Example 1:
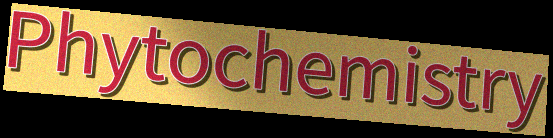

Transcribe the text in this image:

Phytochemistry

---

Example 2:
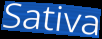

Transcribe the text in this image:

Sativa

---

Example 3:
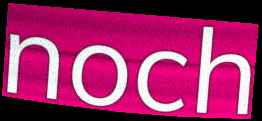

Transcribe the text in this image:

noch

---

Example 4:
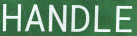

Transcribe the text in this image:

HANDLE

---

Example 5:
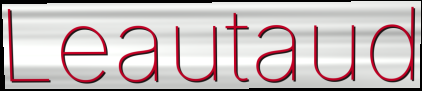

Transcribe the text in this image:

Leautaud